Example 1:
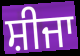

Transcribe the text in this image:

ਸ਼ੀਜਾ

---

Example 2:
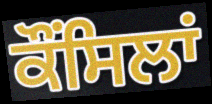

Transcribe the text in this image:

ਕੌਂਸਿਲਾਂ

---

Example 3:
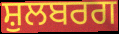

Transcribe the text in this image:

ਸ਼ੁਲਬਰਗ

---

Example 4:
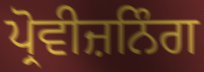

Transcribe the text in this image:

ਪ੍ਰੋਵੀਜ਼ਨਿੰਗ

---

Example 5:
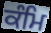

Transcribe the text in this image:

ਕੰਮਿ